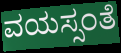
ವಯಸ್ಸಂತೆ